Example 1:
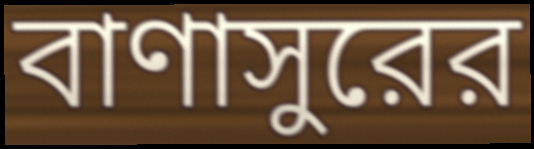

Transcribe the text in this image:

বাণাসুরের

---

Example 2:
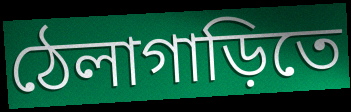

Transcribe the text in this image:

ঠেলাগাড়িতে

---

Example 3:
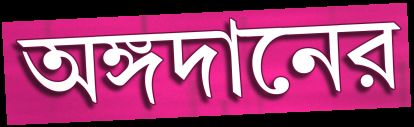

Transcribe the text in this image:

অঙ্গদানের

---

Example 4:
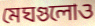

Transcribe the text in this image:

মেঘগুলোও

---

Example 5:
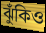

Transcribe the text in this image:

ঝুঁকিও